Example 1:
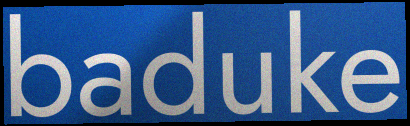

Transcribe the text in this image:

baduke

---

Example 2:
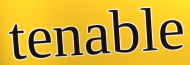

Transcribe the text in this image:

tenable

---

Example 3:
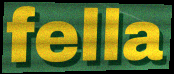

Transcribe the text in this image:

fella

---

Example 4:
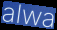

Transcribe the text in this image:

alwa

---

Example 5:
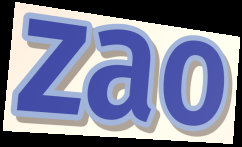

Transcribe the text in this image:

zao